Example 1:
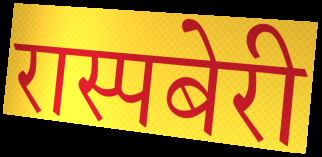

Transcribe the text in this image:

रास्पबेरी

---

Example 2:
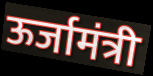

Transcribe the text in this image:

ऊर्जामंत्री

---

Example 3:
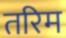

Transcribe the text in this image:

तरिम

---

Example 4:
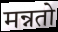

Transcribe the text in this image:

मन्नतो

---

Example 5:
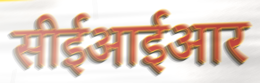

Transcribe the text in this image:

सीईआईआर